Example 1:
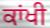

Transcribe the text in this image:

ਕਾਂਖੀ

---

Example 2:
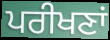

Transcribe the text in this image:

ਪਰੀਖਣਾਂ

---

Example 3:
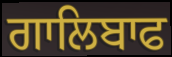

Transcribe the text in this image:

ਗਾਲਿਬਾਫ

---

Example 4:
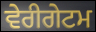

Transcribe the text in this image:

ਵੇਰੀਗੇਟਮ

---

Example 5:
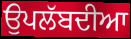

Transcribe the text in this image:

ਉਪਲੱਬਦੀਆ